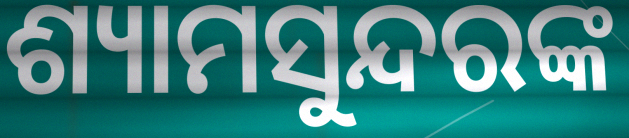
ଶ୍ୟାମସୁନ୍ଦରଙ୍କ